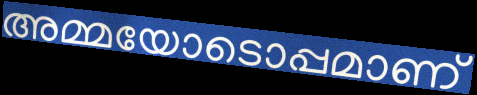
അമ്മയോടൊപ്പമാണ്